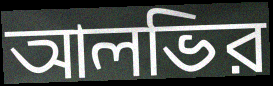
আলভির